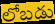
లోబడు